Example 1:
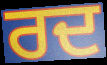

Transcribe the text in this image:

ਰਦ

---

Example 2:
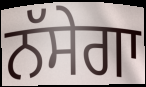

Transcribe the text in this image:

ਨੱਸੇਗਾ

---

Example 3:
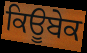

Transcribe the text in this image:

ਕਿਊਬੇਕ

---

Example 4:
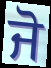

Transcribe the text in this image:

ਜੋ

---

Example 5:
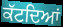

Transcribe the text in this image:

ਕੱਟਦਿਆਂ